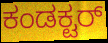
ಕಂಡಕ್ಟರ್